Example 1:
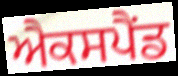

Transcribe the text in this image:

ਐਕਸਪੈਂਡ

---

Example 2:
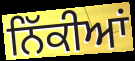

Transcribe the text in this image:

ਨਿੱਕੀਆਂ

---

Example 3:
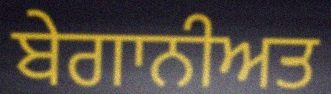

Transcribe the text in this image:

ਬੇਗਾਨੀਅਤ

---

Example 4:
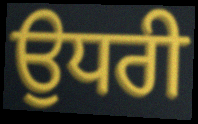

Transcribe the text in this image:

ਉਧਰੀ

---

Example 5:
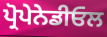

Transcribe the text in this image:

ਪ੍ਰੋਪੇਨੇਡੀਓਲ